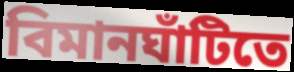
বিমানঘাঁটিতে